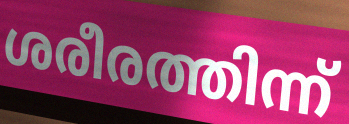
ശരീരത്തിന്ന്